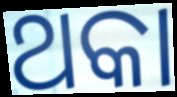
ଥକା